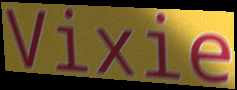
Vixie